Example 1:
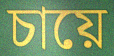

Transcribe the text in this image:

চায়ে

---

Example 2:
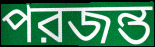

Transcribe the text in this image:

পরজন্ত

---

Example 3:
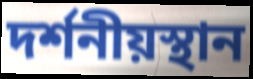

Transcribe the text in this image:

দর্শনীয়স্থান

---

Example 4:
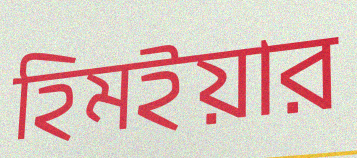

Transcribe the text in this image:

হিমইয়ার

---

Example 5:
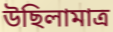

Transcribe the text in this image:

উছিলামাত্র